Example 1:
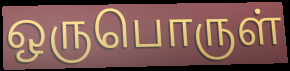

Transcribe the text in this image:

ஒருபொருள்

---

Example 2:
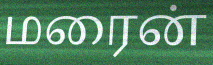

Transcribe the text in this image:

மரைன்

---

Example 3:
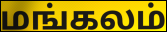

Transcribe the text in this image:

மங்கலம்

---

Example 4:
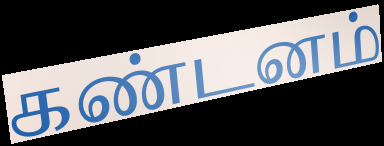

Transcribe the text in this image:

கண்டனம்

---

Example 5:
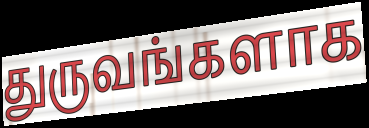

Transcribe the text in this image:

துருவங்களாக